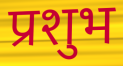
प्रशुभ